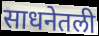
साधनेतली